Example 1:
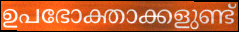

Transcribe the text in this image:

ഉപഭോക്താക്കളുണ്ട്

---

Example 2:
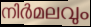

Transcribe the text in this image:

നിർമലവും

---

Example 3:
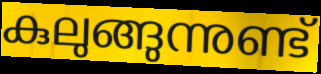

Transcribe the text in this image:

കുലുങ്ങുന്നുണ്ട്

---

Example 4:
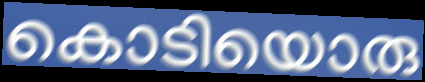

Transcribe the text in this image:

കൊടിയൊരു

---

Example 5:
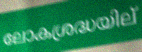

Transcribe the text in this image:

ലോകശ്രദ്ധയില്